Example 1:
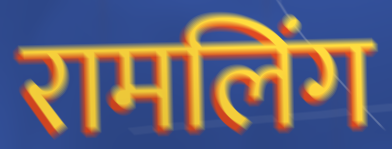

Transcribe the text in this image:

रामलिंग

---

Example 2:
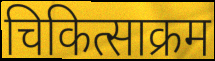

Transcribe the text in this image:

चिकित्साक्रम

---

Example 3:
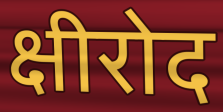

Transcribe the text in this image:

क्षीरोद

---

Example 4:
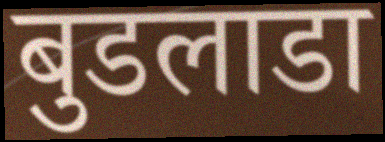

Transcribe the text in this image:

बुडलाडा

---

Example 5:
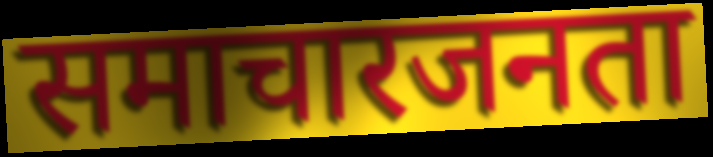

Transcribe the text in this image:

समाचारजनता